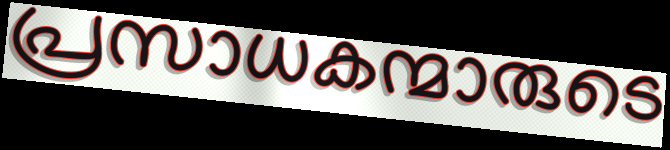
പ്രസാധകന്മാരുടെ